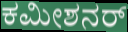
ಕಮೀಶನರ್